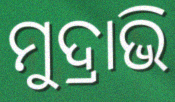
ମୁଦ୍ରାଭି